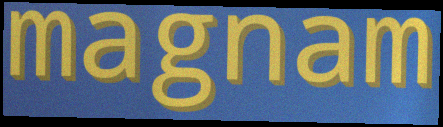
magnam